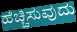
ಹೆಚ್ಚಿಸುವುದು